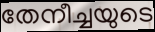
തേനീച്ചയുടെ